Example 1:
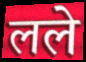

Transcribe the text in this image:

लले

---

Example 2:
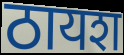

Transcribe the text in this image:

ठायश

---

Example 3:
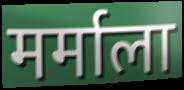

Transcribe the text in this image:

मर्माला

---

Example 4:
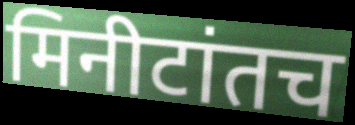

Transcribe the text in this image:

मिनीटांतच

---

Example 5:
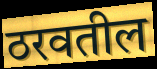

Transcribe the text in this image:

ठरवतील